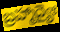
బ్రహ్మాద్యైః